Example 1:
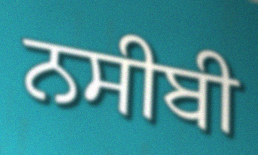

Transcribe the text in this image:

ਨਸੀਬੀ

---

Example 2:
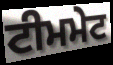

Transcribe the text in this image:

ਟੀਮਮੇਟ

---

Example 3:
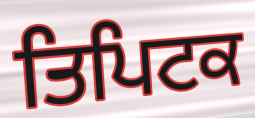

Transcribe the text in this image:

ਤਿਪਿਟਕ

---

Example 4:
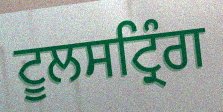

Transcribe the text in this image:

ਟੂਲਸਟ੍ਰਿੰਗ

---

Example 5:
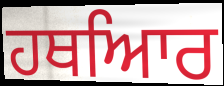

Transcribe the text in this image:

ਹਥਆਿਰ